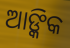
ଆଙ୍କିକ